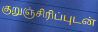
குறுஞ்சிரிப்புடன்